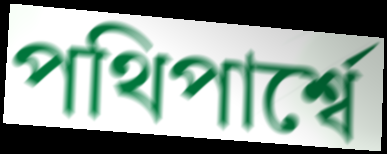
পথিপার্শ্বে